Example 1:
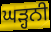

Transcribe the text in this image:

ਘੜ੍ਹਨੀ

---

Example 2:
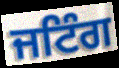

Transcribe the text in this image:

ਜਟਿੰਗ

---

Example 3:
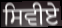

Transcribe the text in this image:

ਸਿਵੀਏ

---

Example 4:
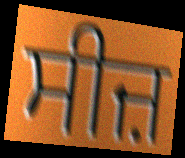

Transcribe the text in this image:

ਸੀਜ਼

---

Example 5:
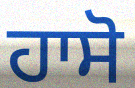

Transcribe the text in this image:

ਹਾਸੋ